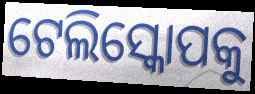
ଟେଲିସ୍କୋପକୁ